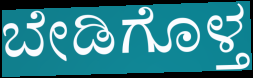
ಬೇಡಿಗೊಳ್ತ